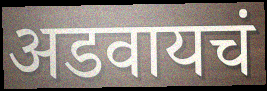
अडवायचं